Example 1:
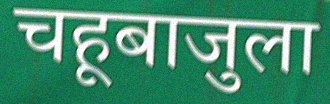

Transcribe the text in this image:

चहूबाजुला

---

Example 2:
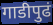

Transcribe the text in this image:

गाडीपुढं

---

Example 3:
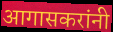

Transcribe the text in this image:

आगासकरांनी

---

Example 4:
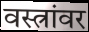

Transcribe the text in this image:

वस्त्रांवर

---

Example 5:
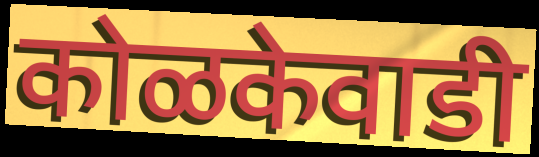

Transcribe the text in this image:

कोळकेवाडी